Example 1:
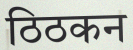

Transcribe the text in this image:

ठिठकन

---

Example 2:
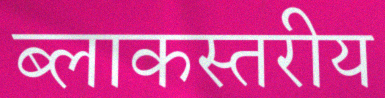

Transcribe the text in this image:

ब्लाकस्तरीय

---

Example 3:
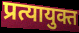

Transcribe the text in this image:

प्रत्यायुक्त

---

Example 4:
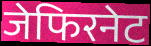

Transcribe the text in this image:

जेफिरनेट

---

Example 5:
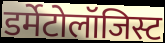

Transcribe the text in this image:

डर्मेटोलॉजिस्ट